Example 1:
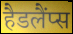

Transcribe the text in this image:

हैडलैंप्स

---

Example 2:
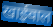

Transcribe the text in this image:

खाईवाल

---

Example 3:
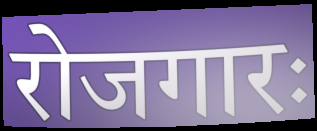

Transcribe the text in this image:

रोजगारः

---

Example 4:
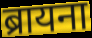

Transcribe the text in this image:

ब्रायना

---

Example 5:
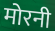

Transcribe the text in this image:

मोरनी